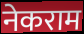
नेकराम